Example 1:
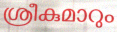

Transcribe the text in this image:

ശ്രീകുമാറും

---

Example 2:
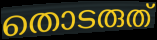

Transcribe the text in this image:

തൊടരുത്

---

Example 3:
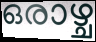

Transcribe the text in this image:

ഒരാഴ്ച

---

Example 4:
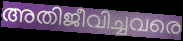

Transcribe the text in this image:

അതിജീവിച്ചവരെ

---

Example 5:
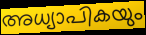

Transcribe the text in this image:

അധ്യാപികയും